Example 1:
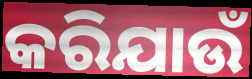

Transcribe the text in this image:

କରିଯାଉଁ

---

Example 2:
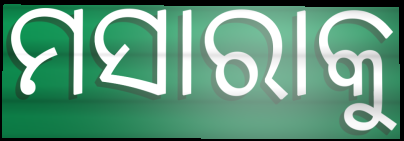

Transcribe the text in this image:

ମସାରାକୁ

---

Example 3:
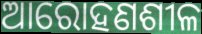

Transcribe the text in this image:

ଆରୋହଣଶୀଳ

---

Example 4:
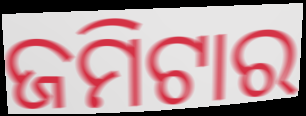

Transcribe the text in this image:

ଜମିଟାର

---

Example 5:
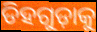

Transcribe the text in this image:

ଡିହଗୁଡ଼ାକୁ